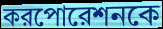
করপোরেশনকে